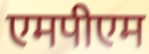
एमपीएम